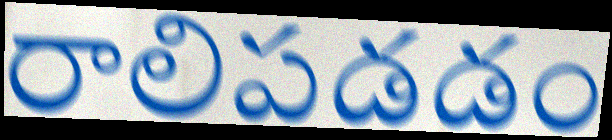
రాలిపడడం